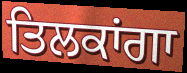
ਤਿਲਕਾਂਗਾ